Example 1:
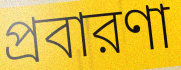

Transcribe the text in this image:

প্রবারণা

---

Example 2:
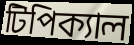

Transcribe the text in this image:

টিপিক্যাল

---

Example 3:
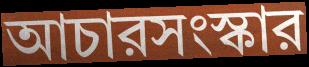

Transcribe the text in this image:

আচারসংস্কার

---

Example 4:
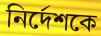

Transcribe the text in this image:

নির্দেশকে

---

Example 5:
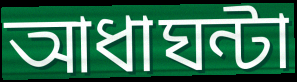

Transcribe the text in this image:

আধাঘন্টা